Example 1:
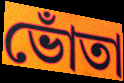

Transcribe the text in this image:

ভোঁতা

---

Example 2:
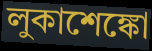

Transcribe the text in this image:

লুকাশেঙ্কো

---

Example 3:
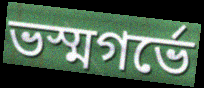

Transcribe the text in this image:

ভস্মগর্ভে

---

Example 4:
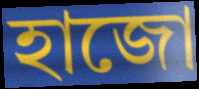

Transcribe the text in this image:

হাজো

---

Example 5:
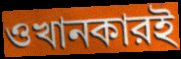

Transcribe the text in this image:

ওখানকারই